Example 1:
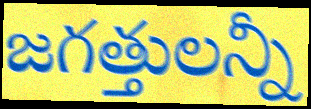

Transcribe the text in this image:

జగత్తులన్నీ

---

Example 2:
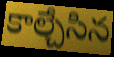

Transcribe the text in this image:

కాల్చేసిన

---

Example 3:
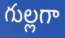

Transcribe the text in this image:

గుల్లగా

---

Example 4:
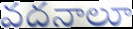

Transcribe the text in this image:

వదనాలూ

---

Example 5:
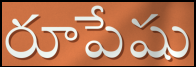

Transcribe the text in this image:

రూపేషు